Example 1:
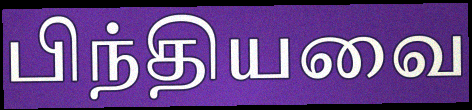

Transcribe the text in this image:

பிந்தியவை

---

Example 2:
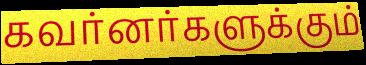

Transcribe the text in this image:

கவர்னர்களுக்கும்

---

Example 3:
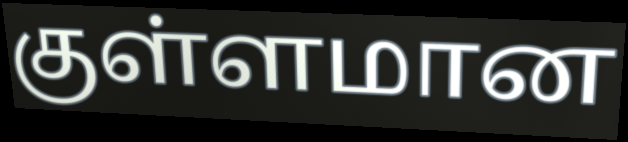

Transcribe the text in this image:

குள்ளமான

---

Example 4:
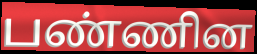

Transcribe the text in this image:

பண்ணின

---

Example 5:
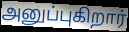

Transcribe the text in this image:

அனுப்புகிறார்